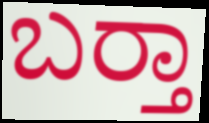
ಬರ‍್ತಾ